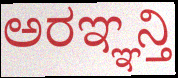
ಅರಞ್ಞನ್ತಿ